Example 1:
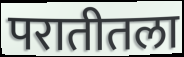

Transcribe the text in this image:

परातीतला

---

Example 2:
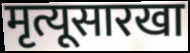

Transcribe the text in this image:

मृत्यूसारखा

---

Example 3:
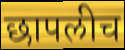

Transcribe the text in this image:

छापलीच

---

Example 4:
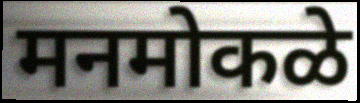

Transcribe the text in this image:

मनमोकळे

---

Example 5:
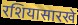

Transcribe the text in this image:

रशियासारखे